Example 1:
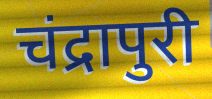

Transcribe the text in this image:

चंद्रापुरी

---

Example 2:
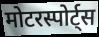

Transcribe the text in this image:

मोटरस्पोर्ट्स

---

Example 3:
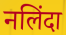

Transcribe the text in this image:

नलिंदा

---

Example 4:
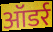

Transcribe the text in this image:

ऑडर्र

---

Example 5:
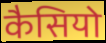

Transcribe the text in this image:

कैसियो